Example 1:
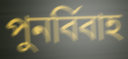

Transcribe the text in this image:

পুনৰ্বিবাহ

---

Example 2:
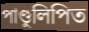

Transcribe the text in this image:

পাণ্ডুলিপিত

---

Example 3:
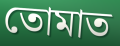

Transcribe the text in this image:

তোমাত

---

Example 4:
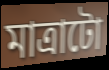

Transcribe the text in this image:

মাত্ৰাটো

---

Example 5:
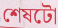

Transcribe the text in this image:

শেষটো